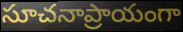
సూచనాప్రాయంగా